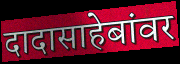
दादासाहेबांवर